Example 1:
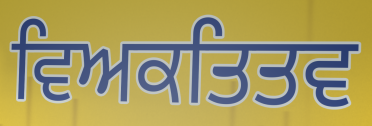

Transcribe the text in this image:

ਵਿਅਕਤਿਤਵ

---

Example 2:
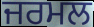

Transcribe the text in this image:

ਜਰਮਲ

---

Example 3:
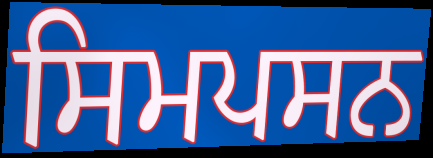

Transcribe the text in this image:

ਸਿਮਪਸਨ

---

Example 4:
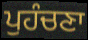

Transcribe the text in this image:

ਪੁਹੰਚਣਾ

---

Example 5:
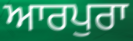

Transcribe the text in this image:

ਆਰਪੁਰਾ